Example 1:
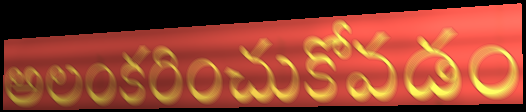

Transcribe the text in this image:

అలంకరించుకోవడం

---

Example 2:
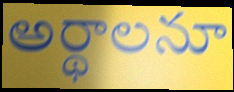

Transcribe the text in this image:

అర్థాలనూ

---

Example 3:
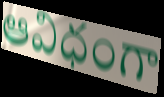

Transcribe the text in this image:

ఆవిధంగా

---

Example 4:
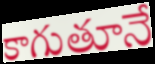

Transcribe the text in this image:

కాగుతూనే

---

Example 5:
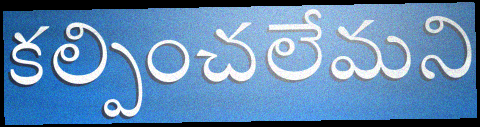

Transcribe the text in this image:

కల్పించలేమని